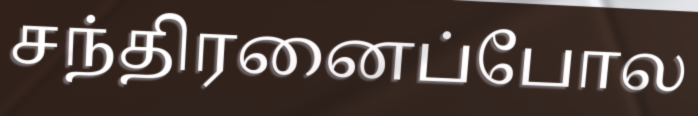
சந்திரனைப்போல